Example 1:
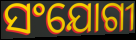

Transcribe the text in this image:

ସଂଯୋଗୀ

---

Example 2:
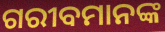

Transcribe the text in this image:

ଗରୀବମାନଙ୍କ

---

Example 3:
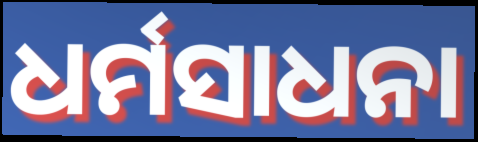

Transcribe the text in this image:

ଧର୍ମସାଧନା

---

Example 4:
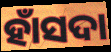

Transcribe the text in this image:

ହାଁସଦା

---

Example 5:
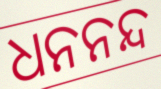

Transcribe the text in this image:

ଧନନନ୍ଦ